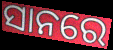
ସାନରେ